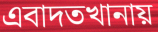
এবাদতখানায়